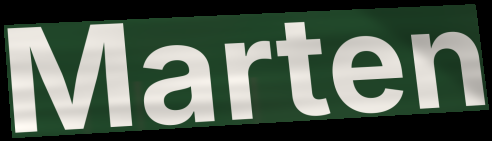
Marten